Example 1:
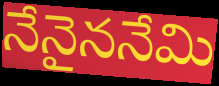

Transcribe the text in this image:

నేనైననేమి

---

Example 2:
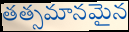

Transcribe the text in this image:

తత్సమానమైన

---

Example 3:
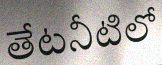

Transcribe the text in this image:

తేటనీటిలో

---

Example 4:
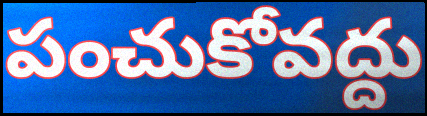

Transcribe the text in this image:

పంచుకోవద్దు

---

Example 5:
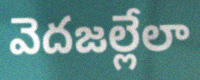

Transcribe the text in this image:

వెదజల్లేలా